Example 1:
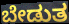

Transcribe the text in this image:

ಬೇಡುತ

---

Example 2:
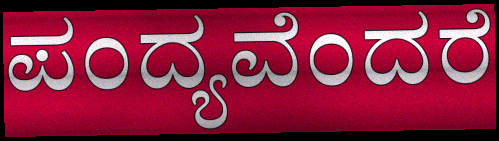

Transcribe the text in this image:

ಪಂದ್ಯವೆಂದರೆ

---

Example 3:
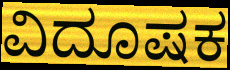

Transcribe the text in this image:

ವಿದೂಷಕ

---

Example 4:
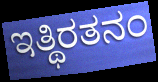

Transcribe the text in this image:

ಇತ್ಥಿರತನಂ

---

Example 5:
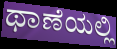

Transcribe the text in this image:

ಥಾಣೆಯಲ್ಲಿ